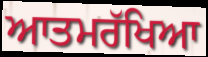
ਆਤਮਰੱਖਿਆ